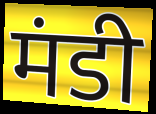
मंडी